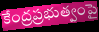
కేంద్రప్రభుత్వంపై